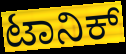
ಟಾನಿಕ್